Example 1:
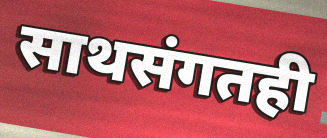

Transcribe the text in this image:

साथसंगतही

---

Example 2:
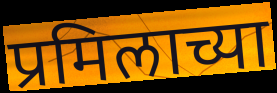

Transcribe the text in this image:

प्रमिलाच्या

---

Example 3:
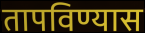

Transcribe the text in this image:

तापविण्यास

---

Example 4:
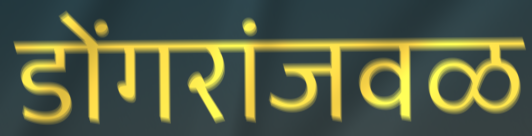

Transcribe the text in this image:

डोंगरांजवळ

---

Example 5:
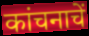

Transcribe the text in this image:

कांचनाचें